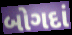
બોગદાં